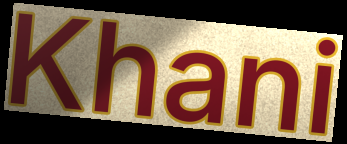
Khani